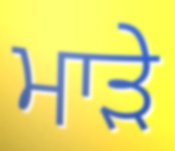
ਮਾੜੇ